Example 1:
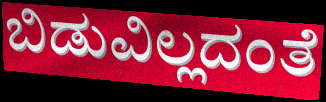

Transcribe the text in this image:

ಬಿಡುವಿಲ್ಲದಂತೆ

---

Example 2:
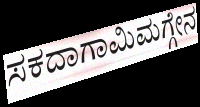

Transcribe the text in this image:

ಸಕದಾಗಾಮಿಮಗ್ಗೇನ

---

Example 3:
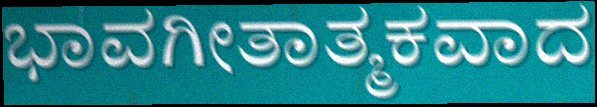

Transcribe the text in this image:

ಭಾವಗೀತಾತ್ಮಕವಾದ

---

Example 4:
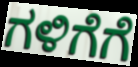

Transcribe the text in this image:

ಗಳಿಗೆಗೆ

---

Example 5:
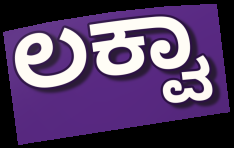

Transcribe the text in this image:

ಲಕ್ವಾ